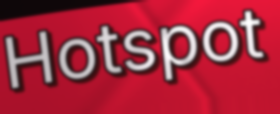
Hotspot